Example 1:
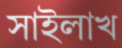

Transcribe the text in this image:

সাইলাখ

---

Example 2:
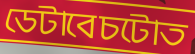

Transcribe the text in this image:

ডেটাবেচটোত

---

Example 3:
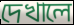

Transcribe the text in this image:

দেখালে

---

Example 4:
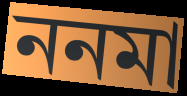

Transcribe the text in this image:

ননমা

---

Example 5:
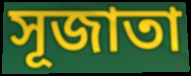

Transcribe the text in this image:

সূজাতা